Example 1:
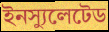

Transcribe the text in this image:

ইনস্যুলেটেড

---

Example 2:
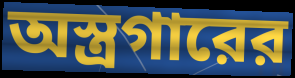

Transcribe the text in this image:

অস্ত্রগারের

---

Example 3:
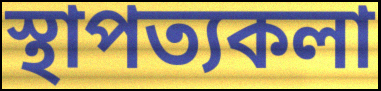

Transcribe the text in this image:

স্থাপত্যকলা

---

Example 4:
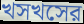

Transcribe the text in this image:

খসখসের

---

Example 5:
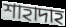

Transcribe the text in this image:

শাহাদাহ